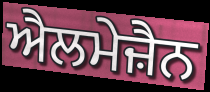
ਐਲਮੇਜ਼ੈਨ